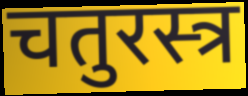
चतुरस्त्र